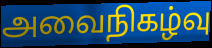
அவைநிகழ்வு